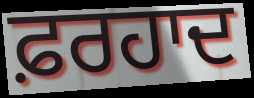
ਫ਼ਰਹਾਦ